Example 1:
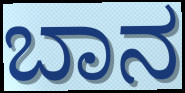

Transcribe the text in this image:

ಬಾನ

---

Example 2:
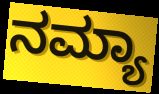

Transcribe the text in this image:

ನಮ್ಯಾ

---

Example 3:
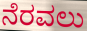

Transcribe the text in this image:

ನೆರವಲು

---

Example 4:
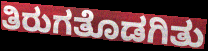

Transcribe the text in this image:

ತಿರುಗತೊಡಗಿತು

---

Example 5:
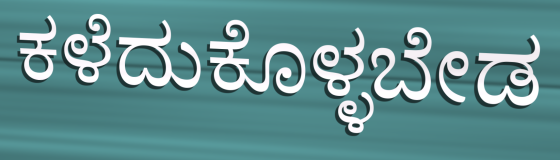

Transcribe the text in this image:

ಕಳೆದುಕೊಳ್ಳಬೇಡ